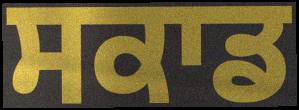
ਸਕਾਡ